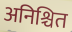
अनिश्चित